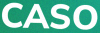
CASO